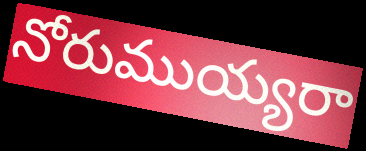
నోరుముయ్యరా